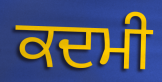
ਕਦਮੀ